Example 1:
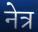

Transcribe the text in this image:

नेत्र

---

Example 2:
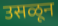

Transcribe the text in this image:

उसळून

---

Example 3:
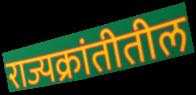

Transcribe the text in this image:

राज्यक्रांतीतील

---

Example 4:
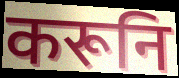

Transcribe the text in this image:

करूनि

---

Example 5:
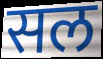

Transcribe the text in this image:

सल